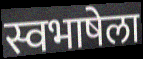
स्वभाषेला